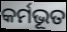
କର୍ମଭୂତ